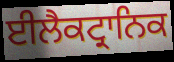
ਈਲੈਕਟ੍ਰਾਨਿਕ